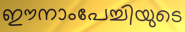
ഈനാംപേച്ചിയുടെ